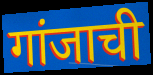
गांजाची